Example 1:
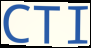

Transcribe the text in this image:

CTI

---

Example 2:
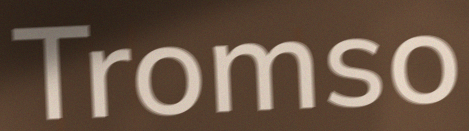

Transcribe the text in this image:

Tromso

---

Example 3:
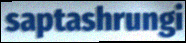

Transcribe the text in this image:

saptashrungi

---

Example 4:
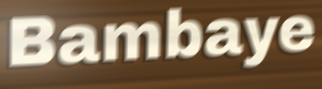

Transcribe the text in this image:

Bambaye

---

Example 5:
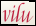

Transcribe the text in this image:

vilu